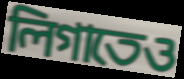
লিগাতেও